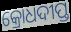
କ୍ରୋଧଦୀପ୍ତ